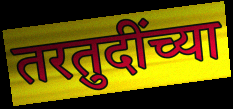
तरतुदींच्या